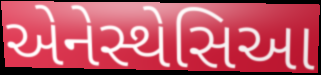
એનેસ્થેસિઆ